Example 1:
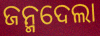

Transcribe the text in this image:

ଜନ୍ମଦେଲା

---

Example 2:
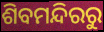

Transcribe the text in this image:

ଶିବମନ୍ଦିରରୁ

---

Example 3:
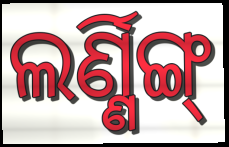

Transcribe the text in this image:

ଲର୍ଣ୍ଣିଙ୍ଗ୍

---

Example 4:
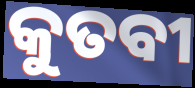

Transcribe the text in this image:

କୁତବୀ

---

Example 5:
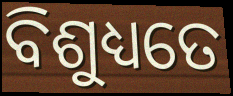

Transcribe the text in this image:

ବିଶୁଧ୍ୟତେ